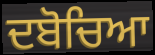
ਦਬੋਚਿਆ